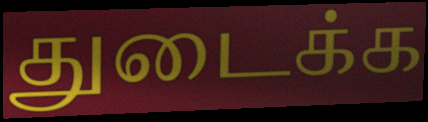
துடைக்க